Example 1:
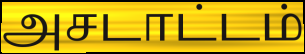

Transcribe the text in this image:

அசடாட்டம்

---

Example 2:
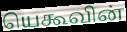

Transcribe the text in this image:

யெகூவின்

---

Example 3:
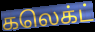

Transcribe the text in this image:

கலெக்ட்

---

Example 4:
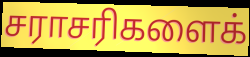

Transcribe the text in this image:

சராசரிகளைக்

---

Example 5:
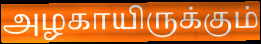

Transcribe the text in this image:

அழகாயிருக்கும்